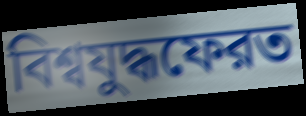
বিশ্বযুদ্ধফেরত